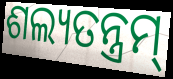
ଶଲ୍ୟତନ୍ତ୍ରମ୍